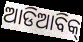
ଆଡିଆବିକ୍